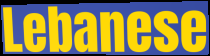
Lebanese